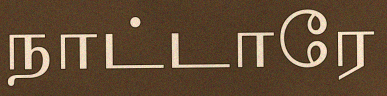
நாட்டாரே